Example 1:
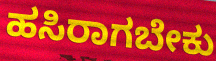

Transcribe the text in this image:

ಹಸಿರಾಗಬೇಕು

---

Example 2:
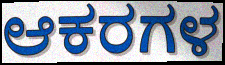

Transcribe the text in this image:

ಆಕರಗಳ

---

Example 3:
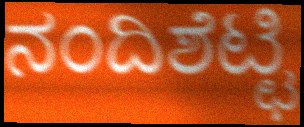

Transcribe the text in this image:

ನಂದಿಶೆಟ್ಟಿ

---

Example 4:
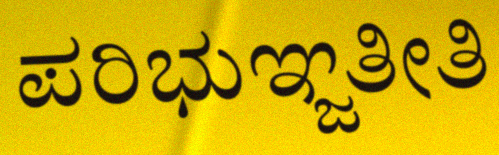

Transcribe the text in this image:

ಪರಿಭುಞ್ಜತೀತಿ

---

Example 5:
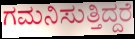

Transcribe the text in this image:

ಗಮನಿಸುತ್ತಿದ್ದರೆ